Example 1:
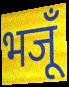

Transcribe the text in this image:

भजूँ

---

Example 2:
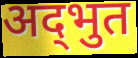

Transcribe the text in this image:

अद्‌भुत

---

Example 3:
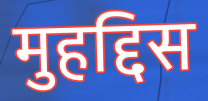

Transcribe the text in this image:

मुहद्दिस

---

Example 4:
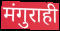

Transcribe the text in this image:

मंगुराही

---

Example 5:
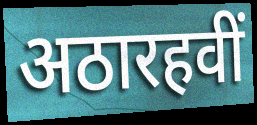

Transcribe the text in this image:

अठारहवीं